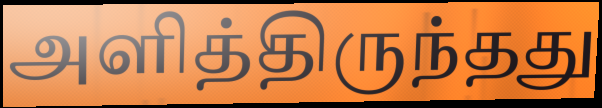
அளித்திருந்தது